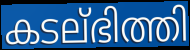
കടല്ഭിത്തി